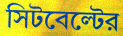
সিটবেল্টের